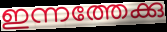
ഇന്നത്തേക്കു